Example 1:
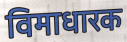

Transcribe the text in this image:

विमाधारक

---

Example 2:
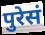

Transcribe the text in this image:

पुरेसं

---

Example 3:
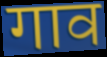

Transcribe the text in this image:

गाव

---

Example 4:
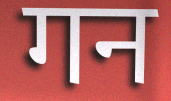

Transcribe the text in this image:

गन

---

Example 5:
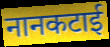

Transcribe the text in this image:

नानकटाई